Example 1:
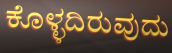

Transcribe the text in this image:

ಕೊಳ್ಳದಿರುವುದು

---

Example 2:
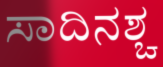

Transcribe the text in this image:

ಸಾದಿನಶ್ಚ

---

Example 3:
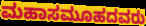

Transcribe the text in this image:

ಮಹಾಸಮೂಹದವರು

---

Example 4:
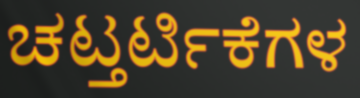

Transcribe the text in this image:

ಚಟ್ತರ್ಟಿಕೆಗಳ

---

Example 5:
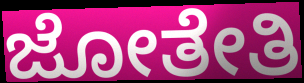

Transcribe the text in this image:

ಜೋತೇತಿ